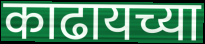
काढायच्या